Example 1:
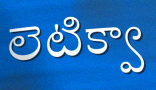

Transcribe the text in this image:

లెటిక్వా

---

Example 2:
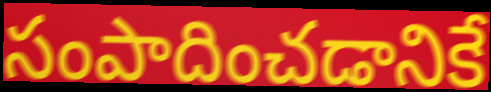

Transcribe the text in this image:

సంపాదించడానికే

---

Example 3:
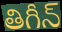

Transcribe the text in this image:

తిగీన్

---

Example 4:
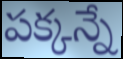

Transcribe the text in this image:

పక్కన్నే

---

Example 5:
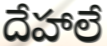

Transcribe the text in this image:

దేహాలే